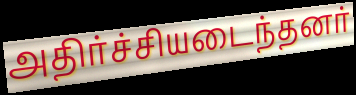
அதிர்ச்சியடைந்தனர்